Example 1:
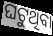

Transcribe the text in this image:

ଘଟୁଥିବା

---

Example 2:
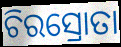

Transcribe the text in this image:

ଚିରସ୍ରୋତା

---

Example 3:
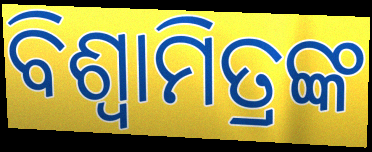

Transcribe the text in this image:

ବିଶ୍ଵାମିତ୍ରଙ୍କ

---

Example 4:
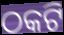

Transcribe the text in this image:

ଠକଟି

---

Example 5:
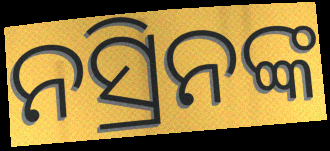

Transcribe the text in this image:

ନସ୍ରିନଙ୍କ